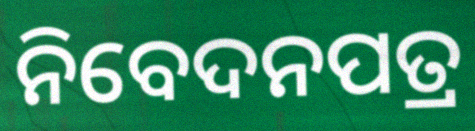
ନିବେଦନପତ୍ର